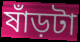
ষাঁড়টা